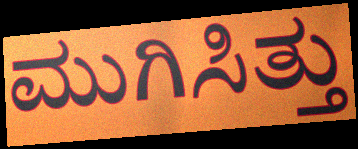
ಮುಗಿಸಿತ್ತು